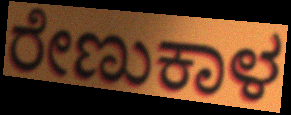
ರೇಣುಕಾಳ